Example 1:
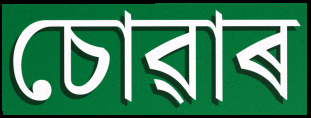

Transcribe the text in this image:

চোৱাৰ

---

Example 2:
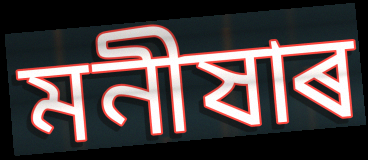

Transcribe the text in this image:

মনীষাৰ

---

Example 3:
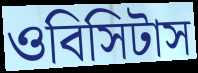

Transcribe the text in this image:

ওবিসিটাস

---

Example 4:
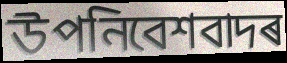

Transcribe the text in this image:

উপনিবেশবাদৰ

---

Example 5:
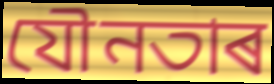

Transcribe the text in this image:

যৌনতাৰ